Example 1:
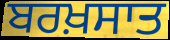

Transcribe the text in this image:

ਬਰਖ਼ਸਾਤ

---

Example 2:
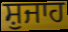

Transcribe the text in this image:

ਸ਼ੁਜਾਹ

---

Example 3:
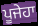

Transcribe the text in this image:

ਪੂਜੇਹਾ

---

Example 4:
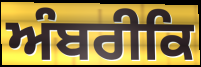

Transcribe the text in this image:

ਅੰਬਰੀਕਿ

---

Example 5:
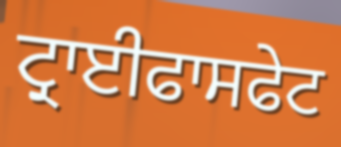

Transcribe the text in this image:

ਟ੍ਰਾਈਫਾਸਫੇਟ